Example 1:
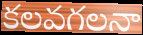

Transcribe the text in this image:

కలవగలనా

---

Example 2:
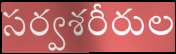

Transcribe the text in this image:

సర్వశరీరుల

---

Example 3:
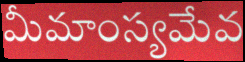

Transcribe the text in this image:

మీమాంస్యమేవ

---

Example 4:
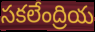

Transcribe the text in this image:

సకలేంద్రియ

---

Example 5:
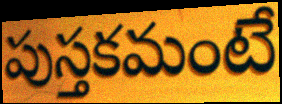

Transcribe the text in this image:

పుస్తకమంటే